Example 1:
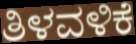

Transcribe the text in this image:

ತಿಳವಳಿಕೆ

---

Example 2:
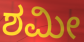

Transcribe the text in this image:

ಶಮೀ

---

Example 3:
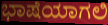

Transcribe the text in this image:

ಭಾಷೆಯಾಗಲಿ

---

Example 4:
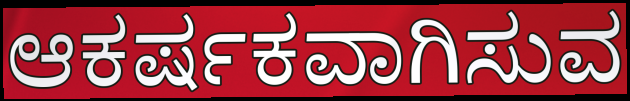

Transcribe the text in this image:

ಆಕರ್ಷಕವಾಗಿಸುವ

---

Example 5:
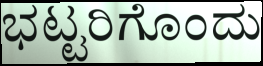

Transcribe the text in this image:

ಭಟ್ಟರಿಗೊಂದು